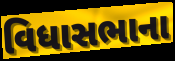
વિધાસભાના